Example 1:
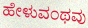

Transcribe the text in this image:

ಹೇಳುವಂಥವು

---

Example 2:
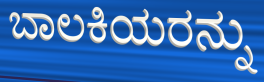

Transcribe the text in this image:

ಬಾಲಕಿಯರನ್ನು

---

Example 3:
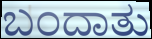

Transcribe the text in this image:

ಬಂದಾತು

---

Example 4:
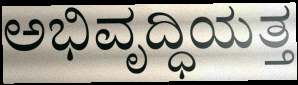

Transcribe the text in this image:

ಅಭಿವೃದ್ಧಿಯತ್ತ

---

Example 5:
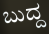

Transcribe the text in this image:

ಬುದ್ದ